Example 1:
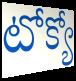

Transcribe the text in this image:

టోక్యో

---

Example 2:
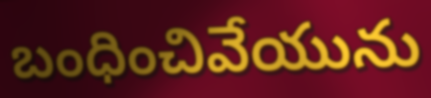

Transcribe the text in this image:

బంధించివేయును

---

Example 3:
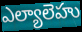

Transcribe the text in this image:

ఎల్యాలెహు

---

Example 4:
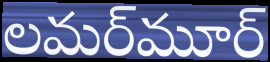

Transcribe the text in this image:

లమర్‌మూర్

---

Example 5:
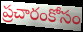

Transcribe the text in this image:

ప్రచారంకోసం